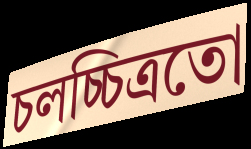
চলচ্চিত্ৰতো